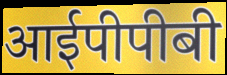
आईपीपीबी